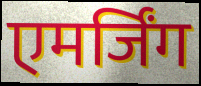
एमर्जिंग